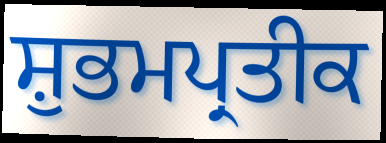
ਸ਼ੁਭਮਪ੍ਰਤੀਕ